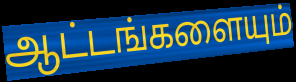
ஆட்டங்களையும்